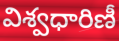
విశ్వధారిణీ